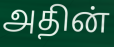
அதின்